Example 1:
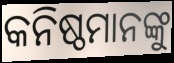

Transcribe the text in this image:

କନିଷ୍ଠମାନଙ୍କୁ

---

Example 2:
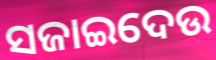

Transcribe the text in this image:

ସଜାଇଦେଉ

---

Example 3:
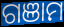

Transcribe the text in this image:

ଗଞାମ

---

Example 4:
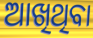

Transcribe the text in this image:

ଆଖିଥିବା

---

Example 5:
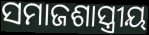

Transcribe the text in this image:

ସମାଜଶାସ୍ତ୍ରୀୟ